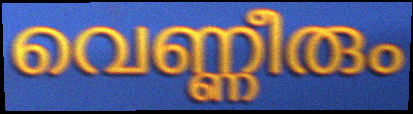
വെണ്ണീരും